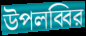
উপলব্বির